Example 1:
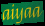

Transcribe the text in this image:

aiyaa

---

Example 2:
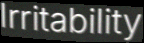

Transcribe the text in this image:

Irritability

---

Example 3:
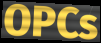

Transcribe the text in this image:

OPCs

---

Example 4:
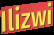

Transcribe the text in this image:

Ilizwi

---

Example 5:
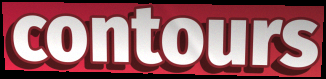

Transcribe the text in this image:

contours